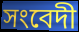
সংবেদী